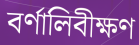
বর্ণালিবীক্ষণ